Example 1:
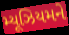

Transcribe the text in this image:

મ્યૂઝિયમને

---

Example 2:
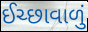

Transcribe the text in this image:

ઈચ્છાવાળું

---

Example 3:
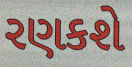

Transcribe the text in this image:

રણકશે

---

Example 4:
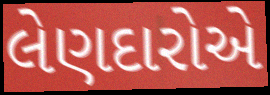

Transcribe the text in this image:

લેણદારોએ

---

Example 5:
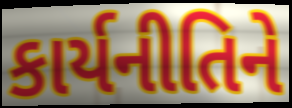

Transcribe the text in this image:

કાર્યનીતિને